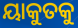
ୟାକୁତକୁ